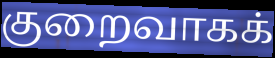
குறைவாகக்